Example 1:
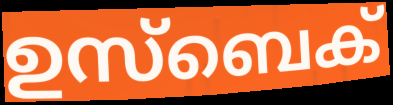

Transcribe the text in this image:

ഉസ്ബെക്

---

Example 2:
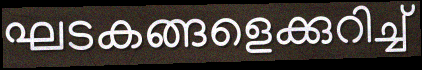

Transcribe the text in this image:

ഘടകങ്ങളെക്കുറിച്ച്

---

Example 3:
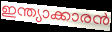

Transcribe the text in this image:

ഇന്ത്യാക്കാരൻ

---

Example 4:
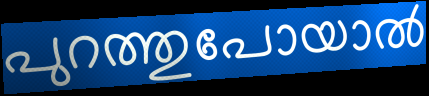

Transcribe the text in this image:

പുറത്തുപോയാൽ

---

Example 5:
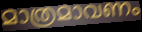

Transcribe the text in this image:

മാത്രമാവണം